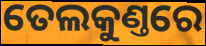
ତେଲକୁଣ୍ତରେ